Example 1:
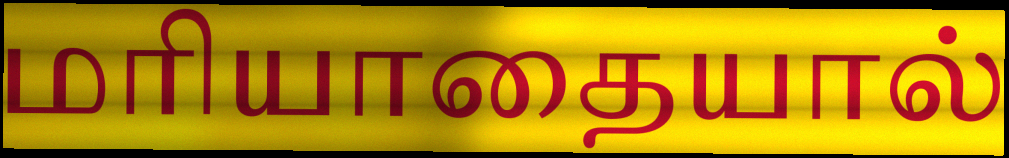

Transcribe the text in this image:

மரியாதையால்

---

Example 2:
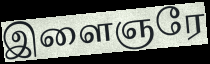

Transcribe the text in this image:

இளைஞரே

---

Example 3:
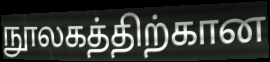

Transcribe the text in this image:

நூலகத்திற்கான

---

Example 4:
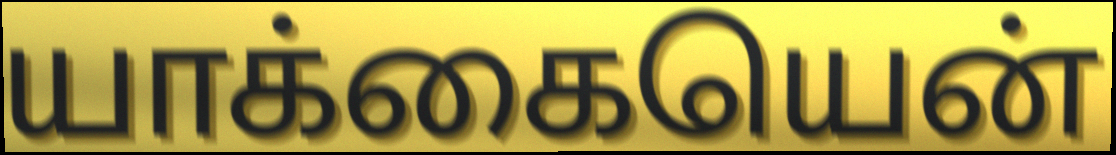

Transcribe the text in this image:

யாக்கையென்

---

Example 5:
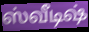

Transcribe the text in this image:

ஸ்வீடிஷ்